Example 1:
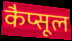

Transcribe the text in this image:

कैप्सूल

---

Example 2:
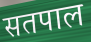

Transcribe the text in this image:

सतपाल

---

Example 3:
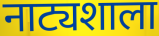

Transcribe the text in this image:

नाट्यशाला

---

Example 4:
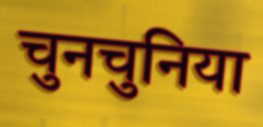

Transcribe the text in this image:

चुनचुनिया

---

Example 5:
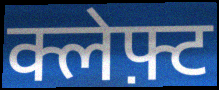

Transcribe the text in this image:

क्लेफ़्ट